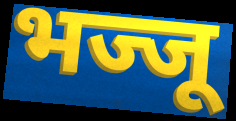
भज्जू